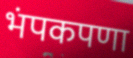
भंपकपणा